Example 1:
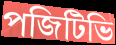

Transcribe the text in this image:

পজিটিভি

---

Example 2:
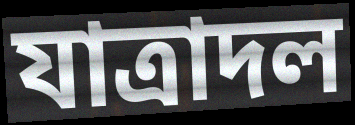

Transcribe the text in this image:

যাত্রাদল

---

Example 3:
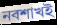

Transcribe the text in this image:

নবশাখই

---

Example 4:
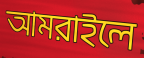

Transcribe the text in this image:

আমরাইলে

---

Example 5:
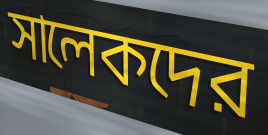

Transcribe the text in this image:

সালেকদের